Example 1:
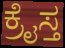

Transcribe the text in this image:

ಕ್ರೈಸ್ತ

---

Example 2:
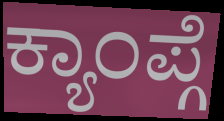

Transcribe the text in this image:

ಕ್ಯಾಂಪ್ಗೆ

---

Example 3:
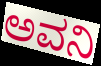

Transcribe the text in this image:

ಅವನಿ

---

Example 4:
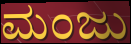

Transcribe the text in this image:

ಮಂಜು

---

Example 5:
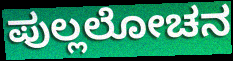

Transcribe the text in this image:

ಪುಲ್ಲಲೋಚನ